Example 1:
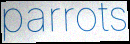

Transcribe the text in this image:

parrots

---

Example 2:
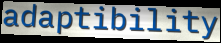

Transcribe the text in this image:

adaptibility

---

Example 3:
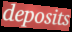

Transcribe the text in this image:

deposits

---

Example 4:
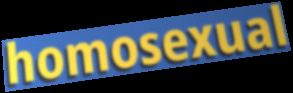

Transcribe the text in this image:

homosexual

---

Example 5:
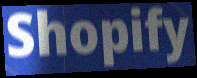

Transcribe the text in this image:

Shopify